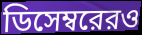
ডিসেম্বরেরও